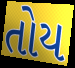
તોય